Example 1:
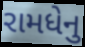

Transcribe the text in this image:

રામધેનુ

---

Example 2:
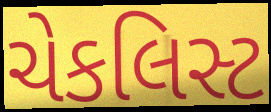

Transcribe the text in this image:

ચેકલિસ્ટ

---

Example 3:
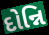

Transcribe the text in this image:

દોન્નિ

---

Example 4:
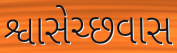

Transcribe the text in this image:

શ્વાસેચ્છવાસ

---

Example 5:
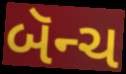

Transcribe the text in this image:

બૅન્ચ